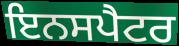
ਇਨਸਪੈਟਰ